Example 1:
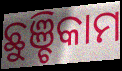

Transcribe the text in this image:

ଛୁଞ୍ଚିକାମ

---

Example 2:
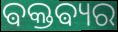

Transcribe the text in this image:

ଵକ୍ତଵ୍ୟର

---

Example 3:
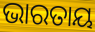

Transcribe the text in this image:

ଭାରତାୟ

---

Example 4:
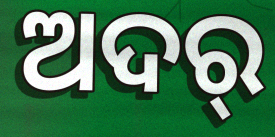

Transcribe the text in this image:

ଅଦର୍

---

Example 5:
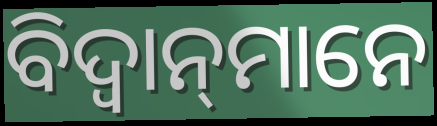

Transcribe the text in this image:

ବିଦ୍ୱାନ୍‌ମାନେ